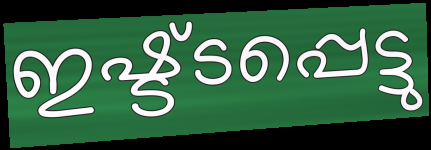
ഇഷ്ട്ടപ്പെട്ടു